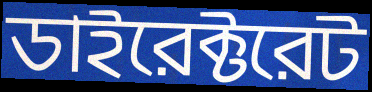
ডাইরেক্টরেট